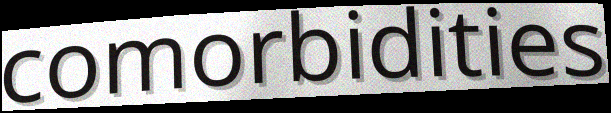
comorbidities